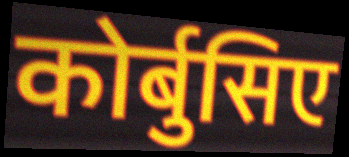
कोर्बुसिए